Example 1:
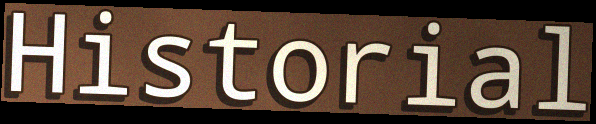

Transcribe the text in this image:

Historial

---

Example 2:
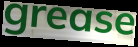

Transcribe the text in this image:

grease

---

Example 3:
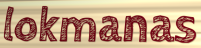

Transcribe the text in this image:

lokmanas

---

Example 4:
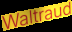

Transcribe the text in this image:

Waltraud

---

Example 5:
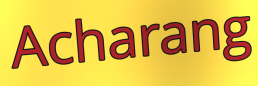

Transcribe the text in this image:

Acharang